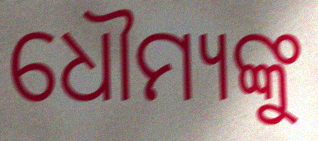
ଧୌମ୍ୟଙ୍କୁ